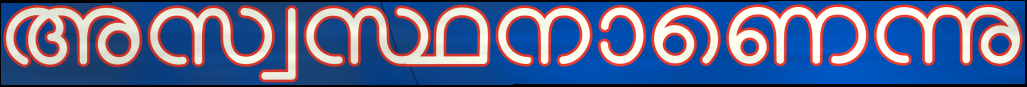
അസ്വസ്ഥനാണെന്നു